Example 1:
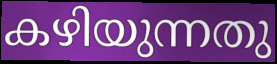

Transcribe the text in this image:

കഴിയുന്നതു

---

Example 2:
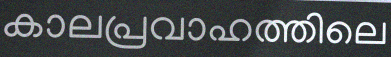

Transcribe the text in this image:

കാലപ്രവാഹത്തിലെ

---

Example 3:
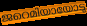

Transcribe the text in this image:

ജറെമിയായോടു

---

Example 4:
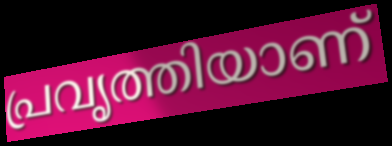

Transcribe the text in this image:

പ്രവൃത്തിയാണ്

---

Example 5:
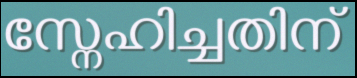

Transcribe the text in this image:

സ്നേഹിച്ചതിന്